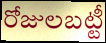
రోజులబట్టీ